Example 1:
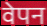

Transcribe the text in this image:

वेपन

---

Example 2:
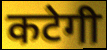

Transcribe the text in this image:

कटेगी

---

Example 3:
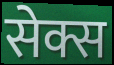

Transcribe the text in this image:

सेक्स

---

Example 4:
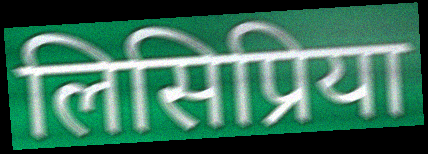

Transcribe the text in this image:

लिसिप्रिया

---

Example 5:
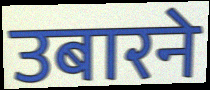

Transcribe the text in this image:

उबारने